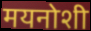
मयनोशी